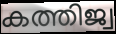
കത്തിജ്വ